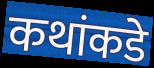
कथांकडे